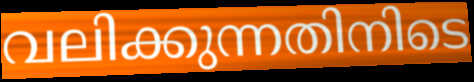
വലിക്കുന്നതിനിടെ